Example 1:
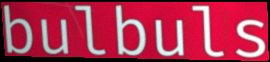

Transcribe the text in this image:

bulbuls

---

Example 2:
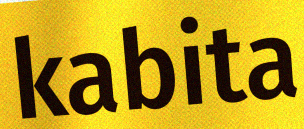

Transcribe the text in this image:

kabita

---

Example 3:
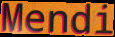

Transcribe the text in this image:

Mendi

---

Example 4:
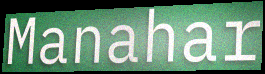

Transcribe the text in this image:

Manahar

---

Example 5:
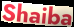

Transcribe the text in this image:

Shaiba